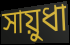
সায়ুধা